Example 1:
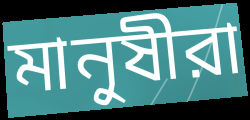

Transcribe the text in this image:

মানুষীরা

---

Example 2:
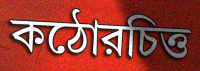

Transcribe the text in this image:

কঠোরচিত্ত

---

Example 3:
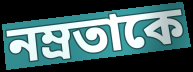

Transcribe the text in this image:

নম্রতাকে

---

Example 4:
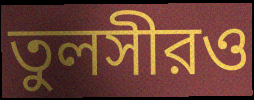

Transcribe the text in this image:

তুলসীরও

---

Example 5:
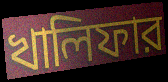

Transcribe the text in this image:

খালিফার